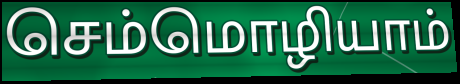
செம்மொழியாம்